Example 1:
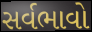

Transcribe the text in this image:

સર્વભાવો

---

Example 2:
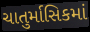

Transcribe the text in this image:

ચાતુર્માસિકમાં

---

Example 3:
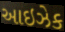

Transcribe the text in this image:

આઇઝેક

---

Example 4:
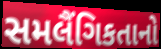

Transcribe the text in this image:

સમલૈંગિકતાનો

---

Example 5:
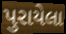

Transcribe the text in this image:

પુરાયેલા